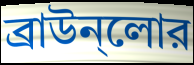
ব্রাউন্লোর